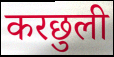
करछुली